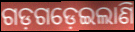
ଗଡ଼ଗଡ଼େଇଲାଣି